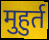
मुहुर्त